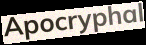
Apocryphal